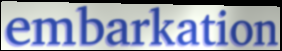
embarkation